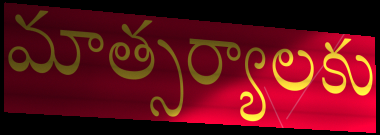
మాత్సర్యాలకు